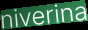
niverina